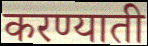
करण्याती